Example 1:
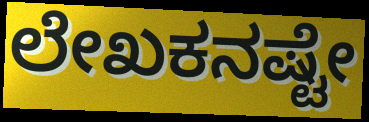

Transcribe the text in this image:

ಲೇಖಕನಷ್ಟೇ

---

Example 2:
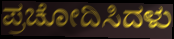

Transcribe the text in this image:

ಪ್ರಚೋದಿಸಿದಳು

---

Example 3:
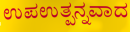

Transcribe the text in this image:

ಉಪಉತ್ಪನ್ನವಾದ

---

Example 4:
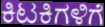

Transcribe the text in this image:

ಕಿಟಕಿಗಳಿಗೆ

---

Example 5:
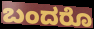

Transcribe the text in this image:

ಬಂದರೊ